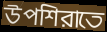
উপশিরাতে